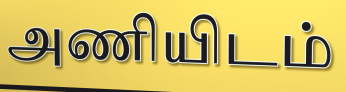
அணியிடம்